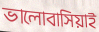
ভালোবাসিয়াই